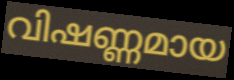
വിഷണ്ണമായ